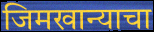
जिमखान्याचा